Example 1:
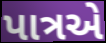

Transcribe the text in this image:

પાત્રએ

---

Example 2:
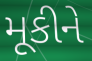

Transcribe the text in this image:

મૂકીને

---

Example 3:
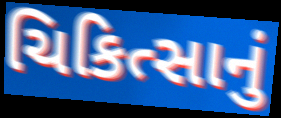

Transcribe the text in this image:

ચિકિત્સાનું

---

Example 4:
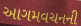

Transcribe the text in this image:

આગમવચનની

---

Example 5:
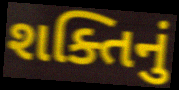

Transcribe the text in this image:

શક્તિનું